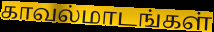
காவல்மாடங்கள்